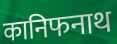
कानिफनाथ